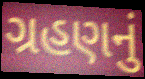
ગ્રહણનું